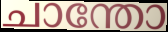
ചാന്തോ